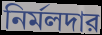
নির্মলদার